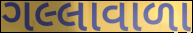
ગલ્લાવાળા